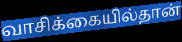
வாசிக்கையில்தான்